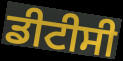
ਡੀਟੀਸੀ